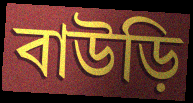
বাউড়ি